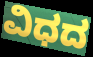
ವಿಧದ